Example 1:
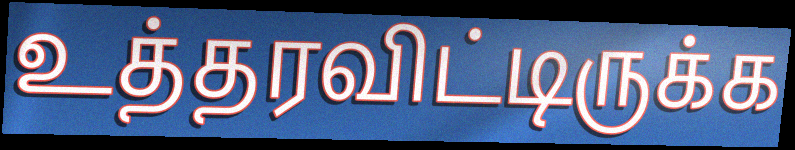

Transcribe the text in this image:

உத்தரவிட்டிருக்க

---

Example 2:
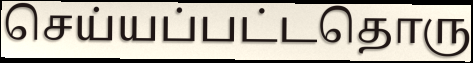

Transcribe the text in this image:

செய்யப்பட்டதொரு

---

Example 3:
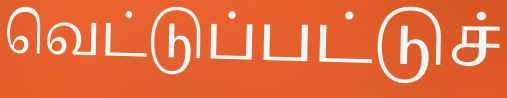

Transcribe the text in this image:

வெட்டுப்பட்டுச்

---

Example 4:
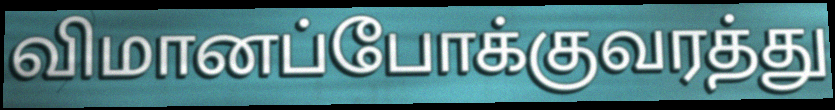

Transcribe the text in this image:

விமானப்போக்குவரத்து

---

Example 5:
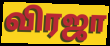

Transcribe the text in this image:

விரஜா